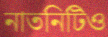
নাতনিটিও